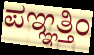
ಪಞ್ಞತ್ತಿಂ